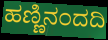
ಹಣ್ಣಿನಂದದಿ